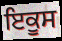
ਇਕੂਸ